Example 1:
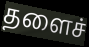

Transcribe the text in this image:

தளைச்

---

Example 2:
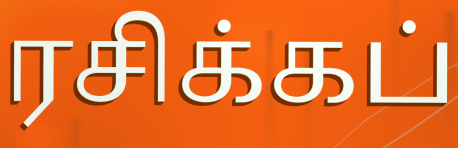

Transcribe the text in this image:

ரசிக்கப்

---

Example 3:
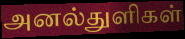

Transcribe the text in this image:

அனல்துளிகள்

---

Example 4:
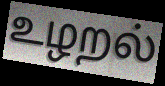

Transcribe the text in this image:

உழறல்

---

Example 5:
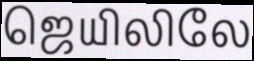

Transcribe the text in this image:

ஜெயிலிலே